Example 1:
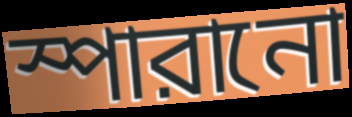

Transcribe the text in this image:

স্পারানো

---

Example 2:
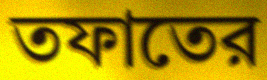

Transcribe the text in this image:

তফাতের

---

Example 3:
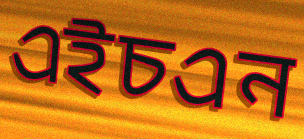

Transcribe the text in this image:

এইচএন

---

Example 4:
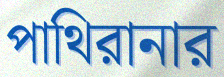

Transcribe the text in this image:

পাথিরানার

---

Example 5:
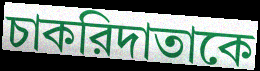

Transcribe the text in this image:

চাকরিদাতাকে